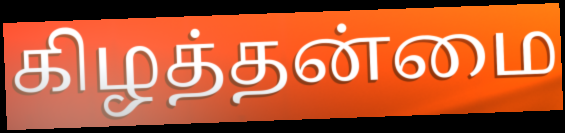
கிழத்தன்மை